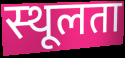
स्थूलता